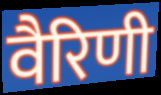
वैरिणी